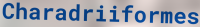
Charadriiformes